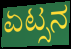
ಏಟ್ಸನ